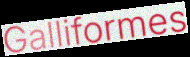
Galliformes